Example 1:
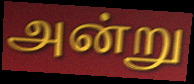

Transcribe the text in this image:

அன்று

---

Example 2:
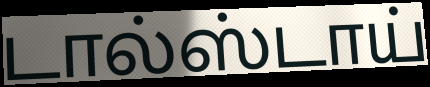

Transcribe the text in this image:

டால்ஸ்டாய்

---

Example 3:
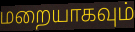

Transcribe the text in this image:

மறையாகவும்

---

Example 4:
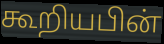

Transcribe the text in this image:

கூறியபின்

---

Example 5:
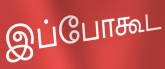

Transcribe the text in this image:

இப்போகூட